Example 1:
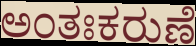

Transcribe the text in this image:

ಅಂತಃಕರುಣೆ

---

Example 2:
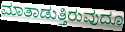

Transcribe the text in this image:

ಮಾತಾಡುತ್ತಿರುವುದೂ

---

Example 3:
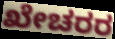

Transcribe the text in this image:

ಖೇಚರರ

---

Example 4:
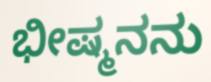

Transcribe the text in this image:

ಭೀಷ್ಮನನು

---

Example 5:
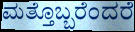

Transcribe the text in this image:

ಮತ್ತೊಬ್ಬರೆಂದರೆ